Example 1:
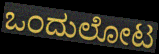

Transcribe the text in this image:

ಒಂದುಲೋಟ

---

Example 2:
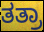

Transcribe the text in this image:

ತತ್ರಾ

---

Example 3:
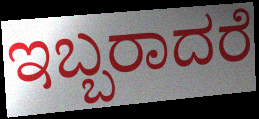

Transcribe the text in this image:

ಇಬ್ಬರಾದರೆ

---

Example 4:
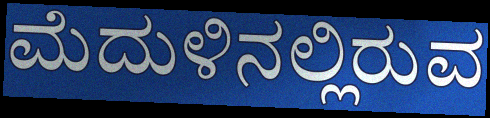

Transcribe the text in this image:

ಮೆದುಳಿನಲ್ಲಿರುವ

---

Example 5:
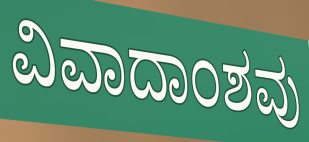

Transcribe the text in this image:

ವಿವಾದಾಂಶವು